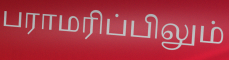
பராமரிப்பிலும்